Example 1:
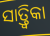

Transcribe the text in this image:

ସାତ୍ତ୍ୱିକା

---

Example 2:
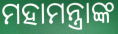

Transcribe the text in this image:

ମହାମନ୍ତ୍ରାଙ୍କ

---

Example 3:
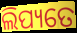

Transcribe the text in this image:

ଲିପ୍ୟତେ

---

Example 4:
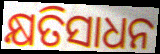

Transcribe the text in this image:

କ୍ଷତିସାଧନ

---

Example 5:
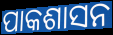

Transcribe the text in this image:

ପାକଶାସନ